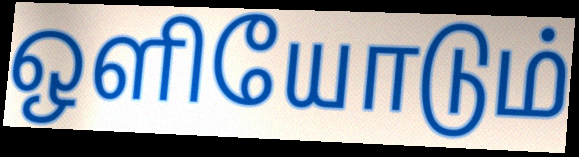
ஒளியோடும்